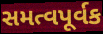
સમત્વપૂર્વક